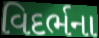
વિદર્ભના